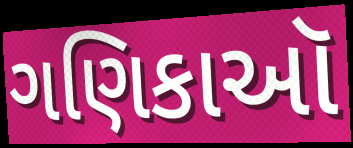
ગણિકાઑ